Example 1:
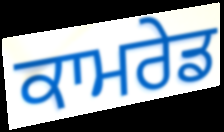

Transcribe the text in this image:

ਕਾਮਰੇਡ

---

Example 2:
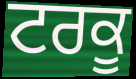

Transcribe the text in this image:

ਟਰਕੂ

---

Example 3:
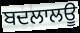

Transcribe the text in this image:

ਬਦਲਾਲਊ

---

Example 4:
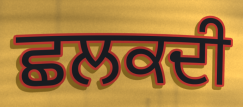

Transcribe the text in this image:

ਛਲਕਦੀ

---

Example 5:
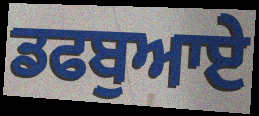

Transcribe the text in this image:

ਡਫਬੁਆਏ